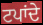
ਟਪਾਂਦੇ